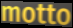
motto